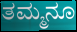
ತಮ್ಮನೂ